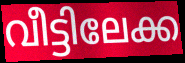
വീട്ടിലേക്ക